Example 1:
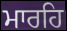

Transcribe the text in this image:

ਮਾਰਹਿ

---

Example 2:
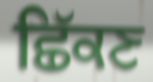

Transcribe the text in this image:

ਛਿੱਕਣ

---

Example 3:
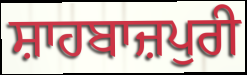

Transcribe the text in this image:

ਸ਼ਾਹਬਾਜ਼ਪੁਰੀ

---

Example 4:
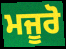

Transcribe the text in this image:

ਮਜੂਰੋ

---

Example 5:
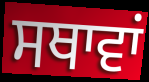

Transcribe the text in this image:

ਸਥਾਵਾਂ